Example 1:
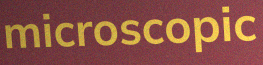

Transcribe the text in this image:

microscopic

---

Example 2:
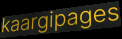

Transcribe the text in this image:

kaargipages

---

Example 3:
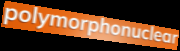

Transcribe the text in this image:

polymorphonuclear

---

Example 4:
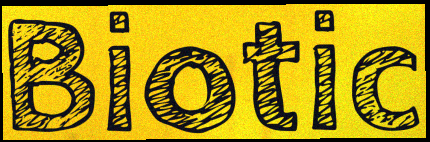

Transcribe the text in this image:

Biotic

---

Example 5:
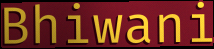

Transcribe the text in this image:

Bhiwani